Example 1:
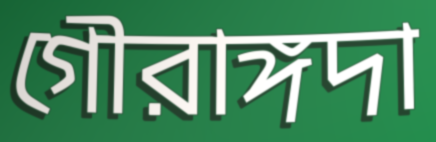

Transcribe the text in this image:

গৌরাঙ্গদা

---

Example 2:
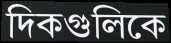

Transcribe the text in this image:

দিকগুলিকে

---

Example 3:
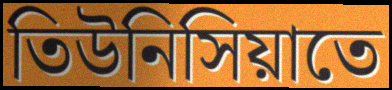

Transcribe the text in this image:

তিউনিসিয়াতে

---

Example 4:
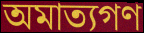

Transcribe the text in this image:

অমাত্যগণ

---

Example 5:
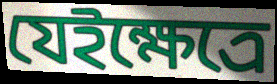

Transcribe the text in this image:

যেইক্ষেত্রে